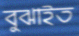
বুঝাইত